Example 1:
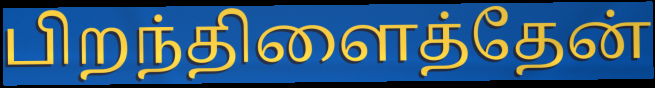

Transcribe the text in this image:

பிறந்திளைத்தேன்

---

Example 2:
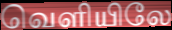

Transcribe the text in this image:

வெளியிலே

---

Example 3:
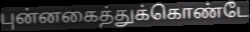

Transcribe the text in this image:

புன்னகைத்துக்கொண்டே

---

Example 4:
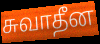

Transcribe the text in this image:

சுவாதீன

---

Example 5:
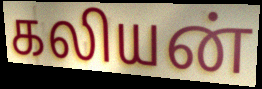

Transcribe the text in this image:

கலியன்